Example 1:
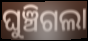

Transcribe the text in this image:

ଘୁଞ୍ଚିଗଲା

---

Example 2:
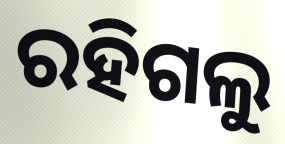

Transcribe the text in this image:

ରହିଗଲୁ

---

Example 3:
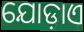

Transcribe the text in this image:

ଯୋଡ଼ାଏ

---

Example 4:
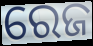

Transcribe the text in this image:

ରେଜ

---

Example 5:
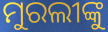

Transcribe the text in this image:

ମୁରଲୀଙ୍କୁ